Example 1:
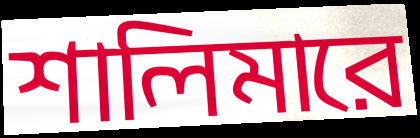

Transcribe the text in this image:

শালিমারে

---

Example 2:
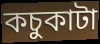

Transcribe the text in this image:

কচুকাটা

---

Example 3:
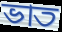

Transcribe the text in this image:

ভাত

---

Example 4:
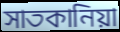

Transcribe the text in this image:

সাতকানিয়া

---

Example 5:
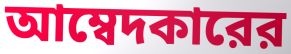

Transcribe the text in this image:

আম্বেদকারের